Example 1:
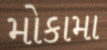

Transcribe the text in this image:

મોકામા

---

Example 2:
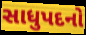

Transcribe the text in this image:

સાધુપદનો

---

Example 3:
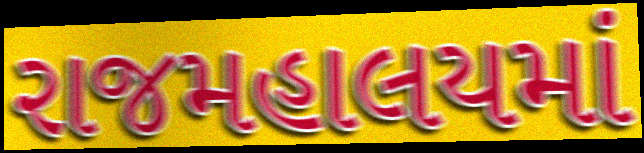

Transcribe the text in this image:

રાજમહાલયમાં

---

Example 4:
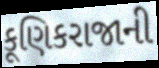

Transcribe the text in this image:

કૂણિકરાજાની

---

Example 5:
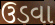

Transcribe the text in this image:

ઉડવા